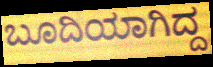
ಬೂದಿಯಾಗಿದ್ದ